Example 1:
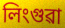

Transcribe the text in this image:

লিংগুৱা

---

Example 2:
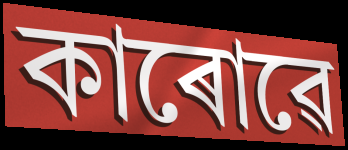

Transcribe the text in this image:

কাৰোৱে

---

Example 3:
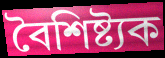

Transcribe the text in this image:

বৈশিষ্ট্যক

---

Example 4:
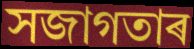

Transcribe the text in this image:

সজাগতাৰ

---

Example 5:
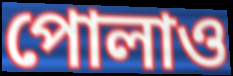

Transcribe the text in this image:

পোলাও